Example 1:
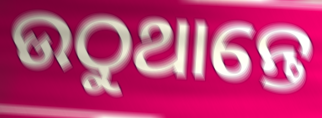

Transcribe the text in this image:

ଉଠୁଥାନ୍ତେ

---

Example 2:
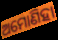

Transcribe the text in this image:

ଅମୋଣିହା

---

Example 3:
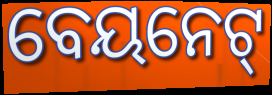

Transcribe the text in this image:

ବେୟନେଟ୍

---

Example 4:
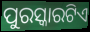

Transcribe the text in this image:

ପୁରସ୍କାରଟିଏ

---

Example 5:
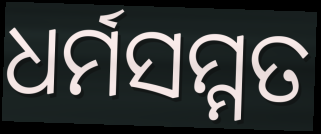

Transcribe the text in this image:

ଧର୍ମସମ୍ମତ